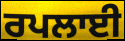
ਰਪਲਾਈ